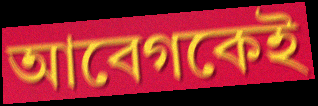
আবেগকেই